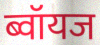
ब्वॉयज